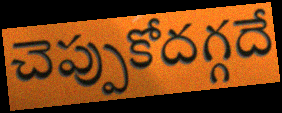
చెప్పుకోదగ్గదే